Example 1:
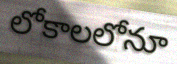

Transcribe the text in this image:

లోకాలలోనూ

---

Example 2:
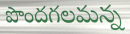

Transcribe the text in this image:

పొందగలమన్న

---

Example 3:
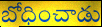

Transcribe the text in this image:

బోధించాడు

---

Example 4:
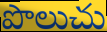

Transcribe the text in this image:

పొలుచు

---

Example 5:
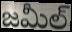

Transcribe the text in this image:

జమీల్